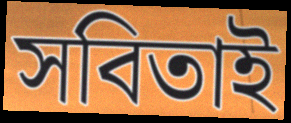
সবিতাই